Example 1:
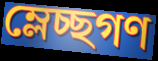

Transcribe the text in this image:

ম্লেচ্ছগণ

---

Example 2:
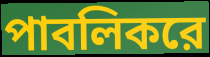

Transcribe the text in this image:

পাবলিকরে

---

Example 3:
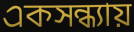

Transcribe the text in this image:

একসন্ধ্যায়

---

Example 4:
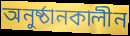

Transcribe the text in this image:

অনুষ্ঠানকালীন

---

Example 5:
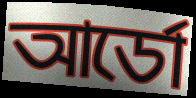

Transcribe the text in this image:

আর্ডো